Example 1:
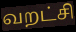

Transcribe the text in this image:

வறட்சி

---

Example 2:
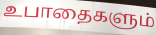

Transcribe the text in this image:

உபாதைகளும்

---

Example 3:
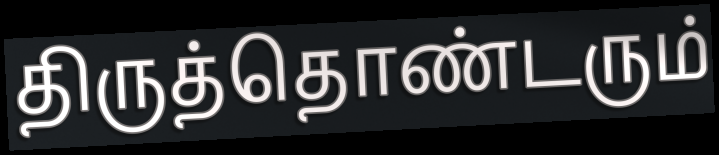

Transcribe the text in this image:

திருத்தொண்டரும்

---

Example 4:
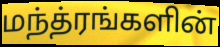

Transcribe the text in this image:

மந்த்ரங்களின்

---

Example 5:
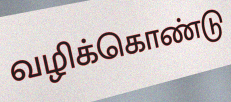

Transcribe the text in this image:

வழிக்கொண்டு